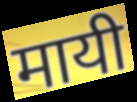
मायी